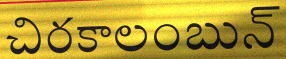
చిరకాలంబున్